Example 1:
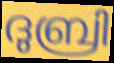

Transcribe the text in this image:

ദുബ്രി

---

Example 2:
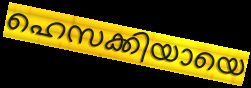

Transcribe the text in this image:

ഹെസക്കിയായെ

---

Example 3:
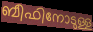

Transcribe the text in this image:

ബീഫിനോടുള്ള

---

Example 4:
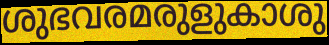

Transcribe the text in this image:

ശുഭവരമരുളുകാശു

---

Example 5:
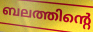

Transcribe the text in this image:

ബലത്തിന്റെ